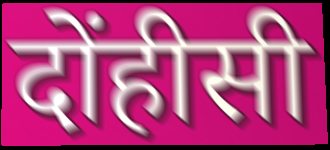
दोंहीसी